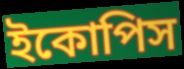
ইকোপিস